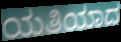
ಯತಿಯಾದ